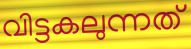
വിട്ടകലുന്നത്